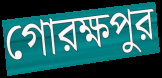
গোরক্ষপুর